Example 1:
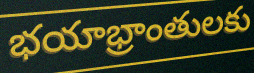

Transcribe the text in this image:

భయాభ్రాంతులకు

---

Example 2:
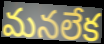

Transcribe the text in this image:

మనలేక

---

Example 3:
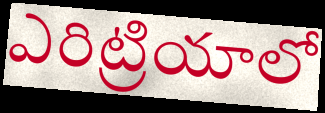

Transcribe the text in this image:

ఎరిట్రియాలో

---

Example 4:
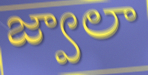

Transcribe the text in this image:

జ్వాలా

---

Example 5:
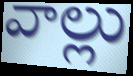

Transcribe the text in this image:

వాల్లు